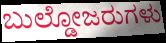
ಬುಲ್ಡೋಜರುಗಳು